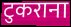
टुकराना